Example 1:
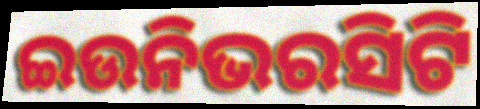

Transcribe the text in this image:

ଇଉନିଭରସିଟି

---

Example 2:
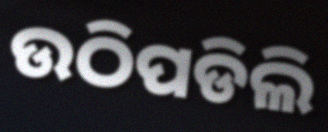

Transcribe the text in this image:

ଉଠିପଡିଲି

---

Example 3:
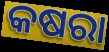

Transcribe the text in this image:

କଷରା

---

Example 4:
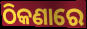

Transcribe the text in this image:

ଠିକଣାରେ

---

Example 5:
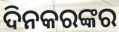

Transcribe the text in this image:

ଦିନକରଙ୍କର